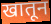
खातून